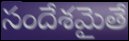
సందేశమైతే